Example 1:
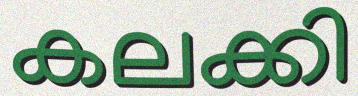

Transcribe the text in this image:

കലക്കി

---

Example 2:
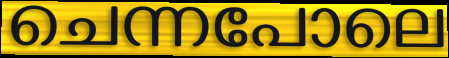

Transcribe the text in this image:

ചെന്നപോലെ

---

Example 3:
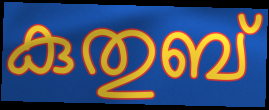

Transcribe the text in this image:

കുതുബ്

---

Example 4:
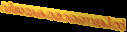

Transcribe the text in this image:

വിജയകരമാണെങ്കിൽ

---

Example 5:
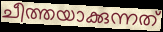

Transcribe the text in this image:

ചീത്തയാക്കുന്നത്